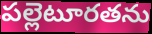
పల్లెటూరతను